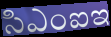
సిఎంఐఇ